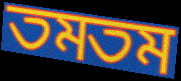
তমতম